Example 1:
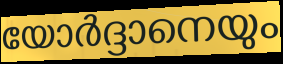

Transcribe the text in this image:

യോർദ്ദാനെയും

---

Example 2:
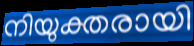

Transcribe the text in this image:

നിയുക്തരായി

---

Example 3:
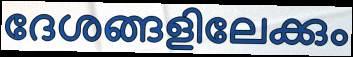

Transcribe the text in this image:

ദേശങ്ങളിലേക്കും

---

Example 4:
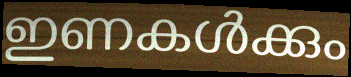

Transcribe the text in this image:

ഇണകൾക്കും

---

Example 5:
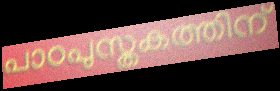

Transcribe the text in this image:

പാഠപുസ്തകത്തിന്